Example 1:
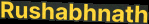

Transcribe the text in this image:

Rushabhnath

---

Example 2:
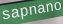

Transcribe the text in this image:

sapnano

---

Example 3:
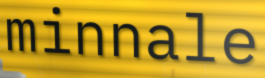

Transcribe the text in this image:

minnale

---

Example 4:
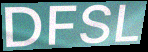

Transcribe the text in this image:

DFSL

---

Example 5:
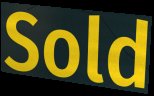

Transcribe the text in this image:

Sold